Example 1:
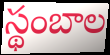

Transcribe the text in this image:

స్థంబాల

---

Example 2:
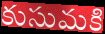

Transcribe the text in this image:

కుసుమకి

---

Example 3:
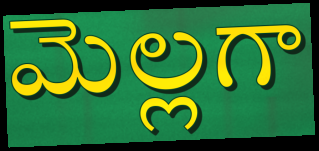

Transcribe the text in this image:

మెల్లగా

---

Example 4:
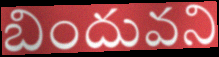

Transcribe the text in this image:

బిందువని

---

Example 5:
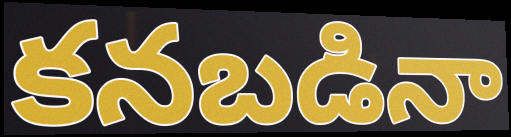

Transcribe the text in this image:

కనబడినా